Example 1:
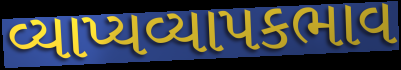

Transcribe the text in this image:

વ્યાપ્યવ્યાપકભાવ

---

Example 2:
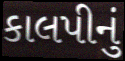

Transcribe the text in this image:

કાલપીનું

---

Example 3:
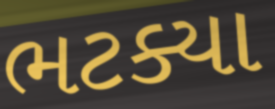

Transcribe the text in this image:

ભટક્યા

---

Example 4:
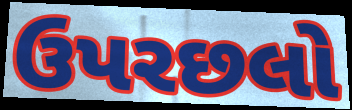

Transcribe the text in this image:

ઉપરછલો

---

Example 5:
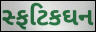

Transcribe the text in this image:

સ્ફટિકઘન